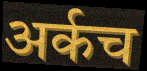
अर्कच